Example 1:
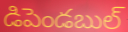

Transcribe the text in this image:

డిపెండబుల్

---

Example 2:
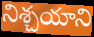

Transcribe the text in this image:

నిశ్చయాని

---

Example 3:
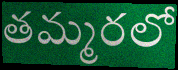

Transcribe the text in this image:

తమ్మరలో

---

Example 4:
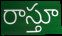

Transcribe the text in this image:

రాస్తూ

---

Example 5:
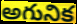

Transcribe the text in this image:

అగునిక